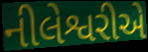
નીલેશ્વરીએ